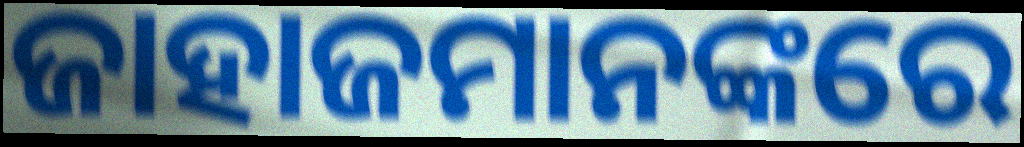
ଜାହାଜମାନଙ୍କରେ